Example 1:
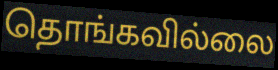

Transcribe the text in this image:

தொங்கவில்லை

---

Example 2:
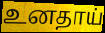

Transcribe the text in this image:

உனதாய்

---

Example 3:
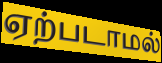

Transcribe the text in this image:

ஏற்படாமல்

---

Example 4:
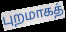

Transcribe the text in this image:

புறமாகத்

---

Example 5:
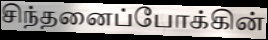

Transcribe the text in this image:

சிந்தனைப்போக்கின்